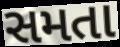
સમતા